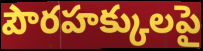
పౌరహక్కులపై